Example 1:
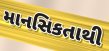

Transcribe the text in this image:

માનસિકતાથી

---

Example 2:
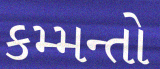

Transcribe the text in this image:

કમ્મન્તો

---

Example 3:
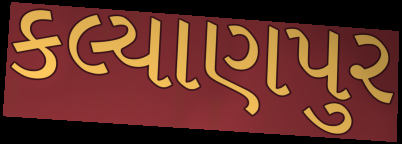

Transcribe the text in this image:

કલ્યાણપુર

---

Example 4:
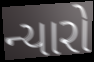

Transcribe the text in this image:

ન્યારો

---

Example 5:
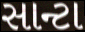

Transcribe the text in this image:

સાન્ટા